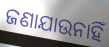
ଜଣାଯାଉନାହିଁ